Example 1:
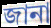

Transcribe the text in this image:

জানা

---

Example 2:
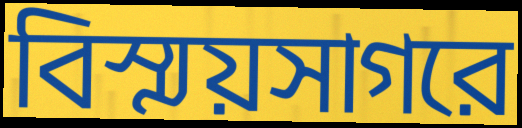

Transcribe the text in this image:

বিস্ময়সাগরে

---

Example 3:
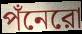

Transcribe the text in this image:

পঁনেরো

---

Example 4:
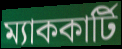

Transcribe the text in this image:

ম্যাককার্টি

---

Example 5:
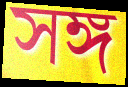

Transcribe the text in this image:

সঙ্গ